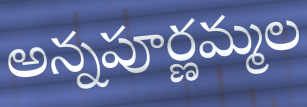
అన్నపూర్ణమ్మల